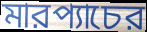
মারপ্যাচের